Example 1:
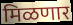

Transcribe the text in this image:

मिळणार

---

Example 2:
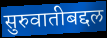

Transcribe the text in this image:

सुरुवातीबद्दल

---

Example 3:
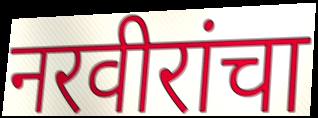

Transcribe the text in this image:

नरवीरांचा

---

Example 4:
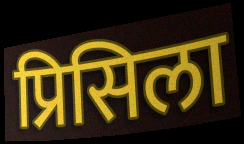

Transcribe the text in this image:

प्रिसिला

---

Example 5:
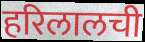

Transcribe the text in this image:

हरिलालची